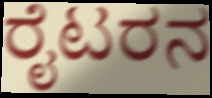
ರೈಟರನ